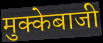
मुक्केबाजी